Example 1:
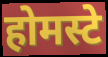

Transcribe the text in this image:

होमस्टे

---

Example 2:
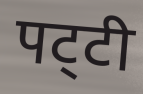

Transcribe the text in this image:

पट्‌टी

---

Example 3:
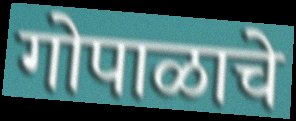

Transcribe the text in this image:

गोपाळाचे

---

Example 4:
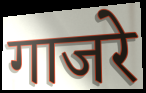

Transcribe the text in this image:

गाजरे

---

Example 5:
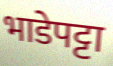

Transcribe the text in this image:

भाडेपट्टा